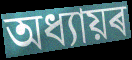
অধ্যায়ৰ